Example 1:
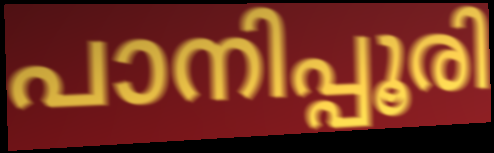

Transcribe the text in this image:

പാനിപ്പൂരി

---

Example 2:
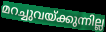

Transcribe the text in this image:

മറച്ചുവയ്ക്കുന്നില്ല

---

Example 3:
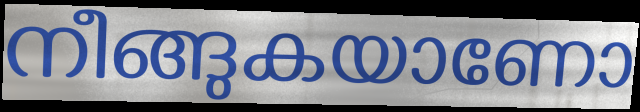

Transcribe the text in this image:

നീങ്ങുകയാണോ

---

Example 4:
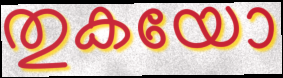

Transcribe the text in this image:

തുകയോ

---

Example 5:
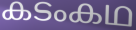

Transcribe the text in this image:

കടംകഥ